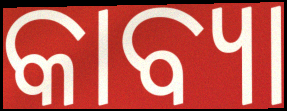
କାବ୍ୟା